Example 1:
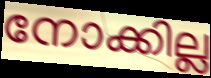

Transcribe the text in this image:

നോക്കില്ല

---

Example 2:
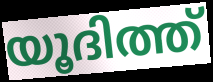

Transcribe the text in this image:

യൂദിത്ത്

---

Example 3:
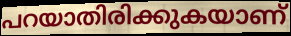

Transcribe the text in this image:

പറയാതിരിക്കുകയാണ്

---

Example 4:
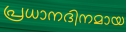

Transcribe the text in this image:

പ്രധാനദിനമായ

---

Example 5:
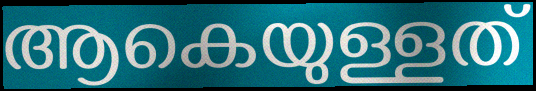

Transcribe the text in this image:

ആകെയുള്ളത്